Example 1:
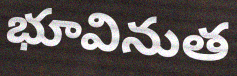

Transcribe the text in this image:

భూవినుత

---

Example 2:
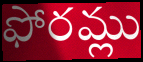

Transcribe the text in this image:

ఫోరమ్లు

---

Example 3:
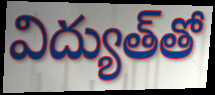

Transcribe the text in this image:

విద్యుత్‌తో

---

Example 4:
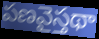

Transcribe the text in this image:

పణవైస్తథా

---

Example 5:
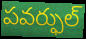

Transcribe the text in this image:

పవర్ఫుల్